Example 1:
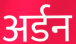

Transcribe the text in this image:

अर्डन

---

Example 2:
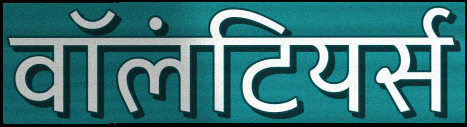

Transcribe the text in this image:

वॉलंटियर्स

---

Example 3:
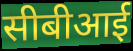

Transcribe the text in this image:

सीबीआई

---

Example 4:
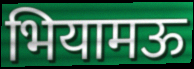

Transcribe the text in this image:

भियामऊ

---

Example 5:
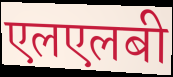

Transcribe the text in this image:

एलएलबी